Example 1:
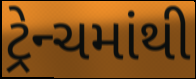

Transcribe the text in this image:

ટ્રેન્ચમાંથી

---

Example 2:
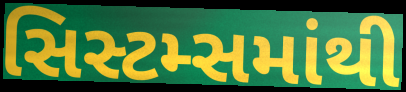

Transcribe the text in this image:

સિસ્ટમ્સમાંથી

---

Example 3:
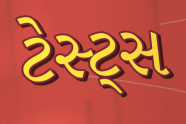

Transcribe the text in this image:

ટેસ્ટ્સ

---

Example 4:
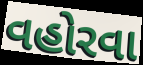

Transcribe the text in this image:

વહોરવા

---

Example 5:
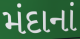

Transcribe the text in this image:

મંદાનાં